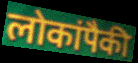
लोकांपैकी